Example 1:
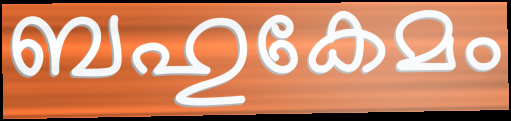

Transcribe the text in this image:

ബഹുകേമം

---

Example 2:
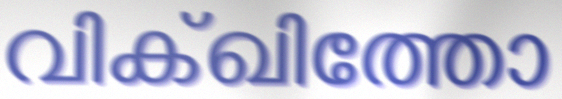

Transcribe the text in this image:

വിക്ഖിത്തോ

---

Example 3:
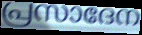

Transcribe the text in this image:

പ്രസാദേന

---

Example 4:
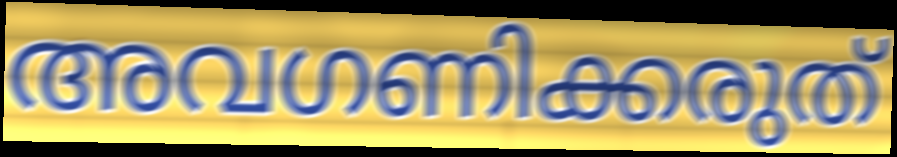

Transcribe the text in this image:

അവഗണിക്കരുത്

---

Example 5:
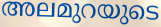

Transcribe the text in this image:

അലമുറയുടെ